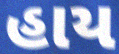
હાય